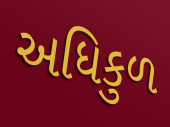
અધિકુળ